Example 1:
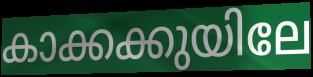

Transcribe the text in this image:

കാക്കക്കുയിലേ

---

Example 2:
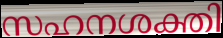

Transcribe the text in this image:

സഹനശക്തി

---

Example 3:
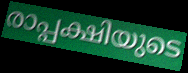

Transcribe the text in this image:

രാപ്പക്ഷിയുടെ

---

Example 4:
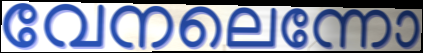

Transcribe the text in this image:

വേനലെന്നോ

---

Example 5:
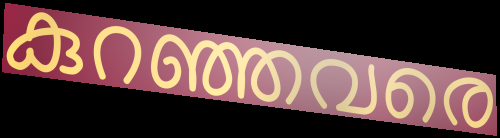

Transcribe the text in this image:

കുറഞ്ഞവരെ